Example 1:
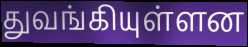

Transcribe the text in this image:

துவங்கியுள்ளன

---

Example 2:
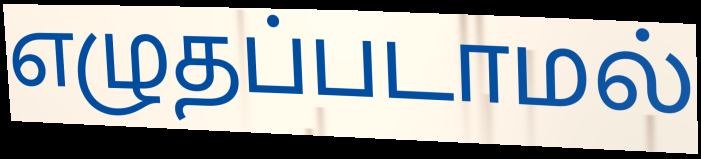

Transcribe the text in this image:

எழுதப்படாமல்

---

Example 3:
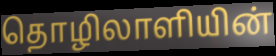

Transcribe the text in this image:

தொழிலாளியின்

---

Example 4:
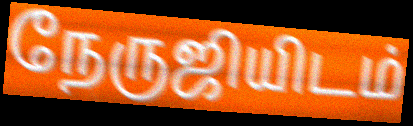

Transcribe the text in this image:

நேருஜியிடம்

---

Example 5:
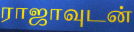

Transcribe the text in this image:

ராஜாவுடன்